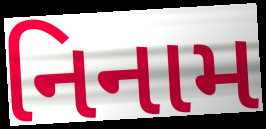
નિનામ